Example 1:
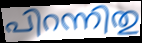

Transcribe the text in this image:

പിറന്നിതു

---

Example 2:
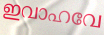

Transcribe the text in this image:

ഇവാഹവേ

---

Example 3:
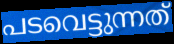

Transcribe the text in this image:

പടവെട്ടുന്നത്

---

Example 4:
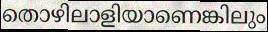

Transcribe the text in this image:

തൊഴിലാളിയാണെങ്കിലും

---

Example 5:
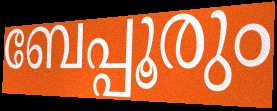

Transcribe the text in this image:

ബേപ്പൂരും